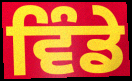
ਵਿੰਡੇ